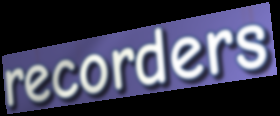
recorders